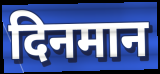
दिनमान